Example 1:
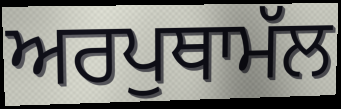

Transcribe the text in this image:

ਅਰਪੁਥਾਮੱਲ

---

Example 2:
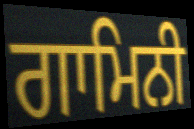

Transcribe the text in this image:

ਗਾਮਿਨੀ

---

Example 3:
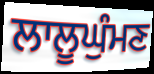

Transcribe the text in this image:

ਲਾਲੂਘੁੰਮਣ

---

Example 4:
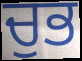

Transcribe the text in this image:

ਚੁਭ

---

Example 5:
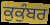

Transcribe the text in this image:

ਕੁਕੁੰਬਰ